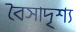
বৈসাদৃশ্য